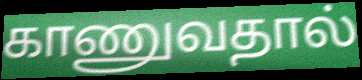
காணுவதால்